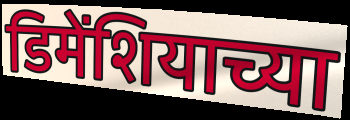
डिमेंशियाच्या